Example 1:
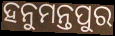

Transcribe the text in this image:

ହନୁମନ୍ତପୁର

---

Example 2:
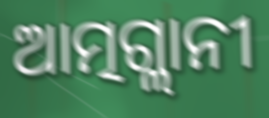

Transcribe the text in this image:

ଆତ୍ମଗ୍ଲାନୀ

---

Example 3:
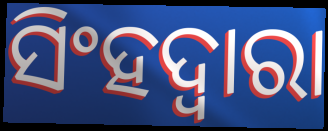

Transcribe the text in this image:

ସିଂହଦ୍ୱାରା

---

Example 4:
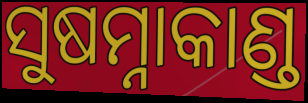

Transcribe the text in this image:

ସୁଷମ୍ନାକାଣ୍ଡ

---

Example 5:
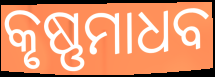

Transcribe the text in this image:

କୃଷ୍ଣମାଧବ